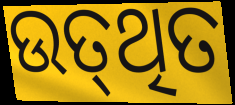
ଉତ୍‌ଥିତ